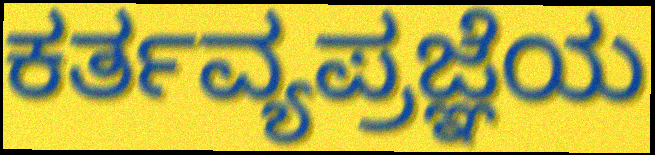
ಕರ್ತವ್ಯಪ್ರಜ್ಞೆಯ